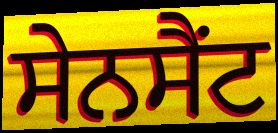
ਸੇਨਸੈਂਟ